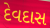
દેવદાસ